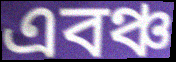
এবঞ্চ